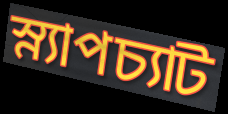
স্ন্যাপচ্যাট